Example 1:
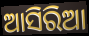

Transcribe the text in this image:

ଆସିରିଆ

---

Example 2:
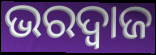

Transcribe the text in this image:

ଭରଦ୍ଵାଜ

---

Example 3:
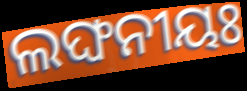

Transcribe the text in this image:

ଲଙ୍ଘନୀୟଃ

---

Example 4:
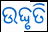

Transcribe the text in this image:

ଉଦ୍ଦୃତି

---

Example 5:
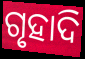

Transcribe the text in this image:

ଗୃହାଦି